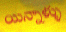
యిన్నాళ్ళు